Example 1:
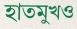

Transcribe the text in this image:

হাতমুখও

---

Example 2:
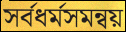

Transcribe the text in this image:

সর্বধর্মসমন্বয়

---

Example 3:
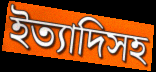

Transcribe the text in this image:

ইত্যাদিসহ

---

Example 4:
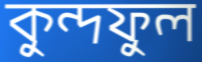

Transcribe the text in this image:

কুন্দফুল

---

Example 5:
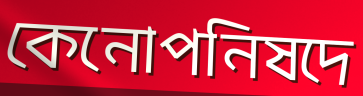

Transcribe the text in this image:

কেনোপনিষদে